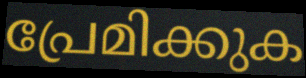
പ്രേമിക്കുക